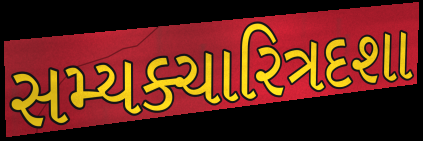
સમ્યક્ચારિત્રદશા